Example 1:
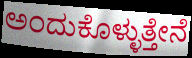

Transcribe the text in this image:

ಅಂದುಕೊಳ್ಳುತ್ತೇನೆ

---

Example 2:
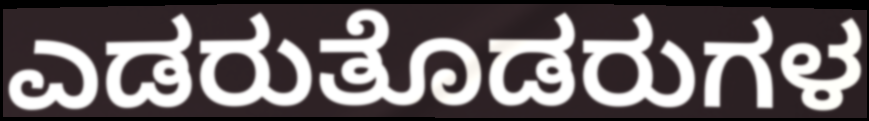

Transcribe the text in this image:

ಎಡರುತೊಡರುಗಳ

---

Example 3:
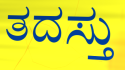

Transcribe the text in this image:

ತದಸ್ತು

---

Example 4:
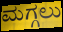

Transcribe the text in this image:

ಮಗ್ಗಲು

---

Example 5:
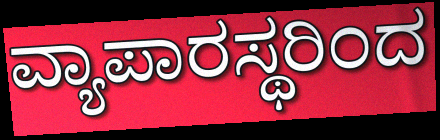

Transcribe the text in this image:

ವ್ಯಾಪಾರಸ್ಥರಿಂದ